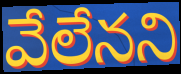
వేలేనని